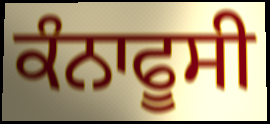
ਕੰਨਾਫੂਸੀ